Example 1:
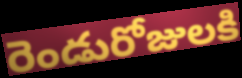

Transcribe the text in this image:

రెండురోజులకి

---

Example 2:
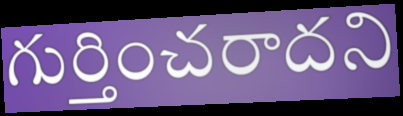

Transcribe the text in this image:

గుర్తించరాదని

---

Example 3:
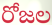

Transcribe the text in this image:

రోజల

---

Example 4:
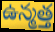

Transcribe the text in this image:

ఉన్మత్త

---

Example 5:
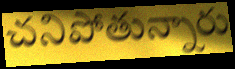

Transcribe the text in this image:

చనిపోతున్నారు